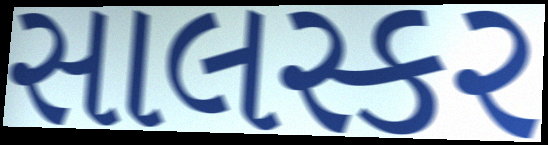
સાલસ્કર